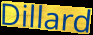
Dillard